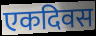
एकदिवस